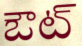
ఔట్